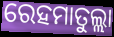
ରେହମାତୁଲ୍ଲା